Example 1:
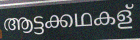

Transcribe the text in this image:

ആട്ടക്കഥകള്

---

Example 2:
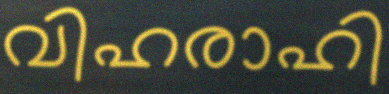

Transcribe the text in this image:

വിഹരാഹി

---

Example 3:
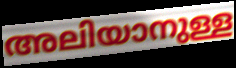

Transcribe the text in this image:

അലിയാനുള്ള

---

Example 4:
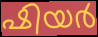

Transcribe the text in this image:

ഷിയർ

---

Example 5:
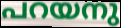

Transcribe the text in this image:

പറയനു